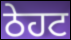
ਠੇਹਟ